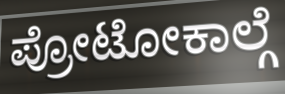
ಪ್ರೋಟೋಕಾಲ್ಗೆ